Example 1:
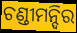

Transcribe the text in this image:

ଚଣ୍ଡୀମନ୍ଦିର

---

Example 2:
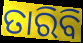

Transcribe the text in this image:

ତାରିବି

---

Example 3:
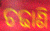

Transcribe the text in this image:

ଚଢାଣି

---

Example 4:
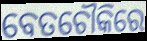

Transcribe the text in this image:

ବେତଚୌକିରେ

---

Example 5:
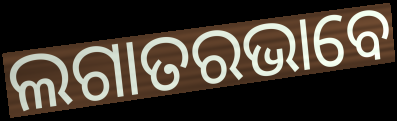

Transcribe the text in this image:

ଲଗାତରଭାବେ